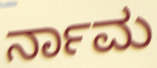
ರ್ನಾಮ